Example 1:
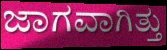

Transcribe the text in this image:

ಜಾಗವಾಗಿತ್ತು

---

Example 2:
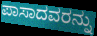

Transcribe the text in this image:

ಪಾಸಾದವರನ್ನು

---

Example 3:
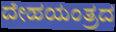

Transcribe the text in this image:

ದೇಹಯಂತ್ರದ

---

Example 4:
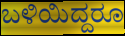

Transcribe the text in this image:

ಬಳಿಯಿದ್ದರೂ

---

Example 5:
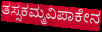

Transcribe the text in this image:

ತಸ್ಸಕಮ್ಮವಿಪಾಕೇನ